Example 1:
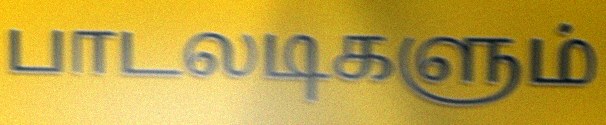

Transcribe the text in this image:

பாடலடிகளும்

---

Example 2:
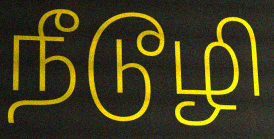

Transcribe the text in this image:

நீடூழி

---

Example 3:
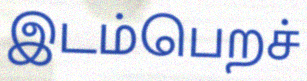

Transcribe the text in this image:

இடம்பெறச்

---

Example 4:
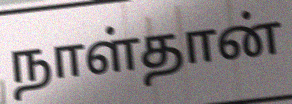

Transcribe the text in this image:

நாள்தான்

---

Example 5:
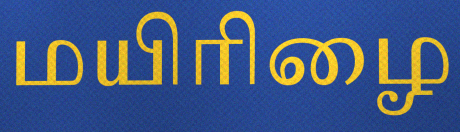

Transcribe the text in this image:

மயிரிழை